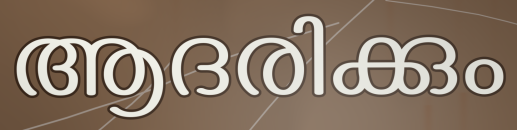
ആദരിക്കും